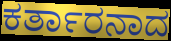
ಕರ್ತಾರನಾದ